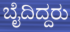
ಬೈದಿದ್ದರು